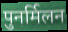
पुनर्मिलन